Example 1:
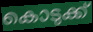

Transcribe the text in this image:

കൊടുക്ക്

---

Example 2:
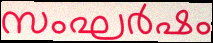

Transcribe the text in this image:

സംഘർഷം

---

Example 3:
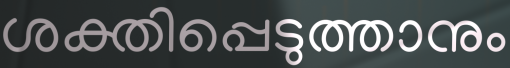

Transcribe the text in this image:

ശക്തിപ്പെടുത്താനും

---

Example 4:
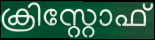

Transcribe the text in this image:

ക്രിസ്റ്റോഫ്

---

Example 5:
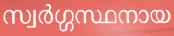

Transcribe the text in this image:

സ്വർഗ്ഗസ്ഥനായ